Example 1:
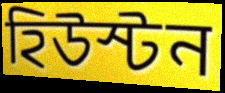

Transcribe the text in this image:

হিউস্টন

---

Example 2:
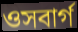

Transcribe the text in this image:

ওসবার্গ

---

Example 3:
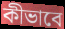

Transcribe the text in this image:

কীভাবে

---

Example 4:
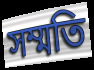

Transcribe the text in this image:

সম্মতি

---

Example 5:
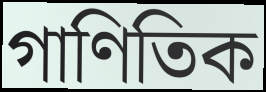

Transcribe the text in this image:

গাণিতিক